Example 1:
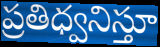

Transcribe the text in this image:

ప్రతిధ్వనిస్తూ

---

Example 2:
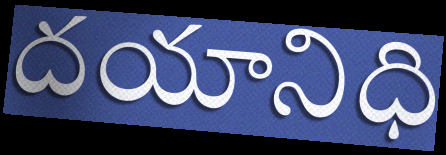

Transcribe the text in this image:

దయానిధి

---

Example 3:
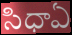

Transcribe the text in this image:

సిధాఏ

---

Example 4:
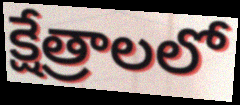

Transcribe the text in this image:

క్షేత్రాలలో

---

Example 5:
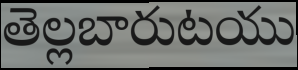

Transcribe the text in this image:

తెల్లబారుటయు